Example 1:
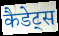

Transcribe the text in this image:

कैडेट्स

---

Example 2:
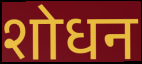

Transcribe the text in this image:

शोधन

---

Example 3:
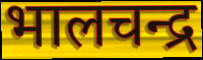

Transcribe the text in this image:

भालचन्द्र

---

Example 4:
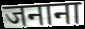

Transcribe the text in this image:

जनाना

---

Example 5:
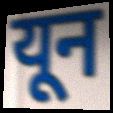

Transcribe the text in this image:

यून